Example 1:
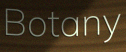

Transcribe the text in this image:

Botany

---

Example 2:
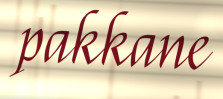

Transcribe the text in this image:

pakkane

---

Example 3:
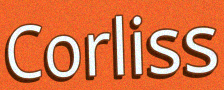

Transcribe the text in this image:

Corliss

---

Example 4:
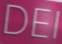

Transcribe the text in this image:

DEI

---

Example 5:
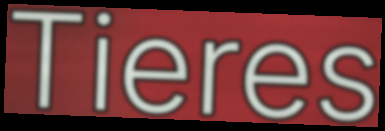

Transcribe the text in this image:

Tieres